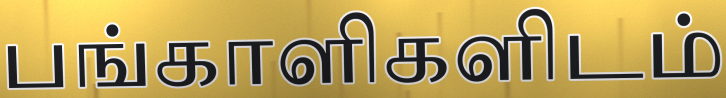
பங்காளிகளிடம்